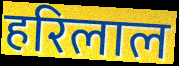
हरिलाल